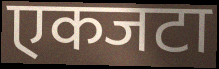
एकजटा